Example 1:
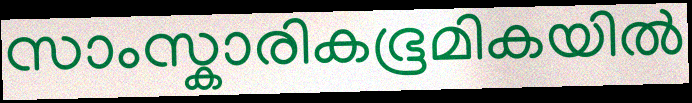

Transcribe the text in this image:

സാംസ്കാരികഭൂമികയിൽ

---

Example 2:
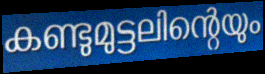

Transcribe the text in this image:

കണ്ടുമുട്ടലിന്റെയും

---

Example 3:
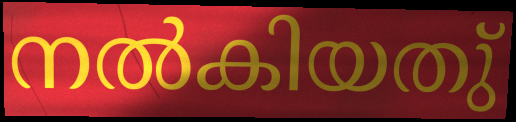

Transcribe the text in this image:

നൽകിയതു്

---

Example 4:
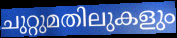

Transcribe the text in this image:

ചുറ്റുമതിലുകളും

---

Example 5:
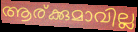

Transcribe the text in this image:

ആര്ക്കുമാവില്ല